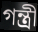
গন্ত্রী